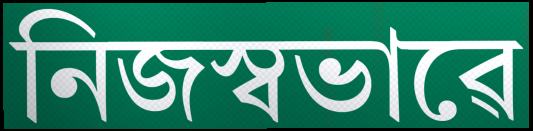
নিজস্বভাৱে